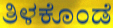
ತಿಳಕೊಂಡೆ